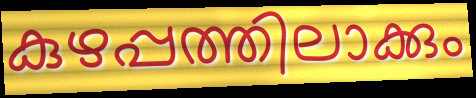
കുഴപ്പത്തിലാക്കും